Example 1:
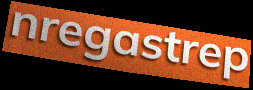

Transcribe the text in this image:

nregastrep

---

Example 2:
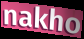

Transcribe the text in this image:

nakho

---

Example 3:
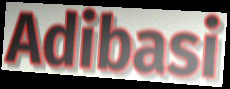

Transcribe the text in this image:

Adibasi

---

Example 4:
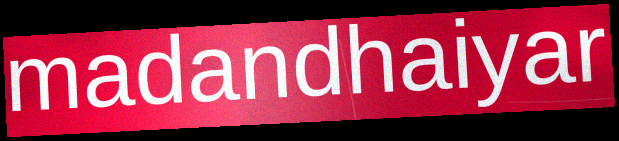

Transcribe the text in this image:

madandhaiyar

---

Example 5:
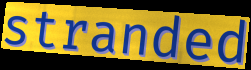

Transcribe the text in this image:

stranded